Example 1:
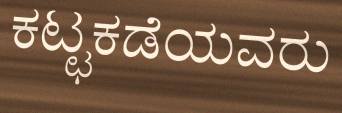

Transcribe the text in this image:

ಕಟ್ಟಕಡೆಯವರು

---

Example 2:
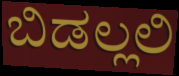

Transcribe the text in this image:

ಬಿಡಲ್ಲಲಿ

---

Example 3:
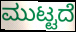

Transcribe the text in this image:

ಮುಟ್ಟದೆ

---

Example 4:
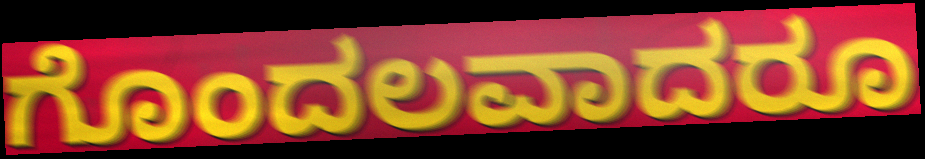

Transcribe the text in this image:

ಗೊಂದಲವಾದರೂ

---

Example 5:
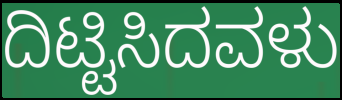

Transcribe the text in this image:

ದಿಟ್ಟಿಸಿದವಳು